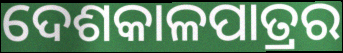
ଦେଶକାଳପାତ୍ରର